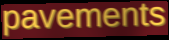
pavements